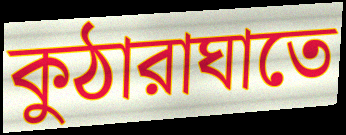
কুঠারাঘাতে